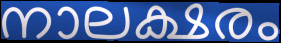
നാലക്ഷരം